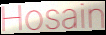
Hosain